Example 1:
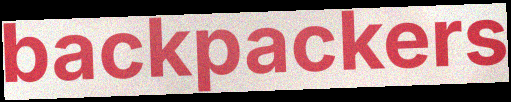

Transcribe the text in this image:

backpackers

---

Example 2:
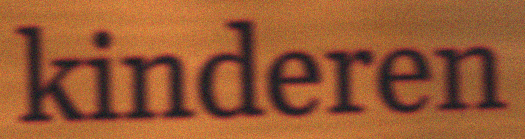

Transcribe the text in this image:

kinderen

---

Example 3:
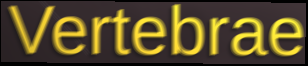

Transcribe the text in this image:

Vertebrae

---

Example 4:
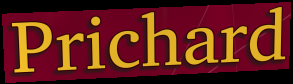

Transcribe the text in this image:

Prichard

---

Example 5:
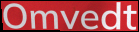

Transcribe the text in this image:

Omvedt